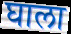
घाला